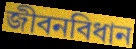
জীবনবিধান